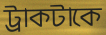
ট্রাকটাকে